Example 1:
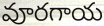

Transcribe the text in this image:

వూరగాయ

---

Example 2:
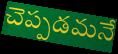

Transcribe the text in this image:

చెప్పడమనే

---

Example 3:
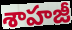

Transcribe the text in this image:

శాహజీ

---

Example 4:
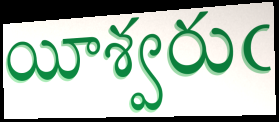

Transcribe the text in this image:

యీశ్వరుఁ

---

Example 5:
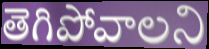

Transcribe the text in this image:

తెగిపోవాలని